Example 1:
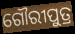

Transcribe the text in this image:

ଗୌରୀପୁତ୍ର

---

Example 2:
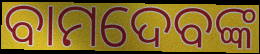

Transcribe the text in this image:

ବାମଦେବଙ୍କ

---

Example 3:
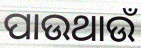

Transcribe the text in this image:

ପାଉଥାଉଁ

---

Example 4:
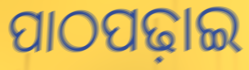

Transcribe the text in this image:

ପାଠପଢ଼ାଇ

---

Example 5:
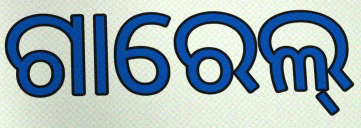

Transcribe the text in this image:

ଗାରେଲ୍